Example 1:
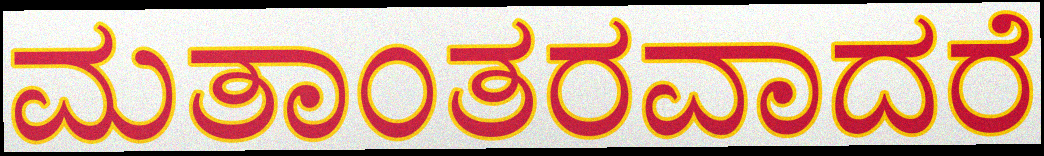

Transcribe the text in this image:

ಮತಾಂತರವಾದರೆ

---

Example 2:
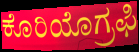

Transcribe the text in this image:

ಕೊರಿಯೊಗ್ರಫಿ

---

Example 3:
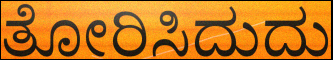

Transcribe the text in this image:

ತೋರಿಸಿದುದು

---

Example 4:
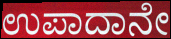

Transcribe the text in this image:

ಉಪಾದಾನೇ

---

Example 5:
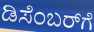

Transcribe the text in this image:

ಡಿಸೆಂಬರ್‌ಗೆ